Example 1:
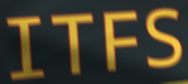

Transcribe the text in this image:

ITFS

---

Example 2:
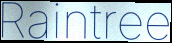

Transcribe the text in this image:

Raintree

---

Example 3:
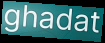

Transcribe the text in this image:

ghadat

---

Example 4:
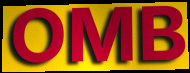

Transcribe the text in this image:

OMB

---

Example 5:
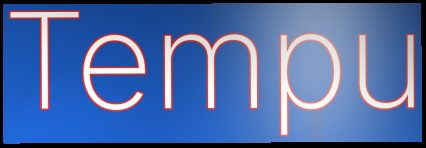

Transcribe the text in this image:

Tempu